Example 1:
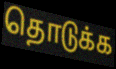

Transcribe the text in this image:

தொடுக்க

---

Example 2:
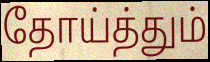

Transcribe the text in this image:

தோய்த்தும்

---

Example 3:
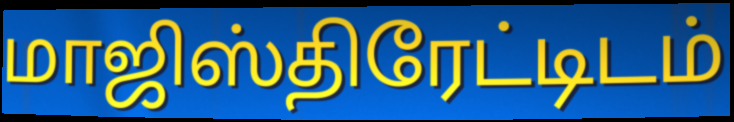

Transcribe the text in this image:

மாஜிஸ்திரேட்டிடம்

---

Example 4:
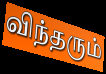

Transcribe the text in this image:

விந்தரும்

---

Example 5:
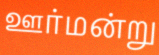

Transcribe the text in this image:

ஊர்மன்று